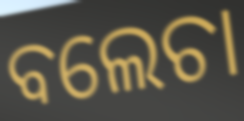
ବଲେଚା